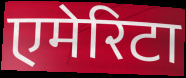
एमेरिटा